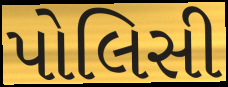
પોલિસી